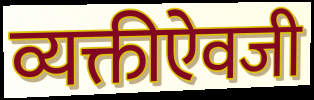
व्यक्तीऐवजी